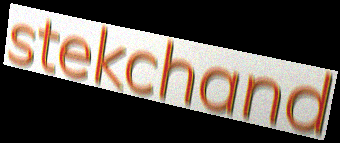
stekchand